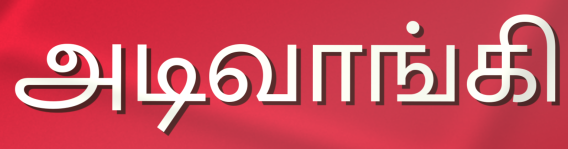
அடிவாங்கி